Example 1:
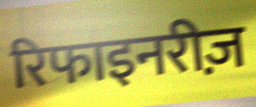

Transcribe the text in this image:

रिफाइनरीज़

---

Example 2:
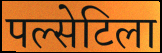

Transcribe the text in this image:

पल्सेटिला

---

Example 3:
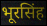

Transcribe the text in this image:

भूरसिंह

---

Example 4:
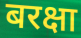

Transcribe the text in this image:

बरक्षा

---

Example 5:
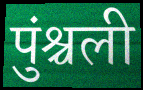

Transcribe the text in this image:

पुंश्चली